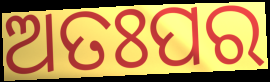
ଅତଃପର